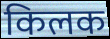
किलक